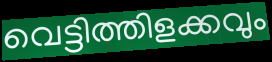
വെട്ടിത്തിളക്കവും